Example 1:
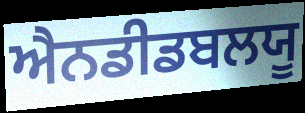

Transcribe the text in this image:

ਐਨਡੀਡਬਲਯੂ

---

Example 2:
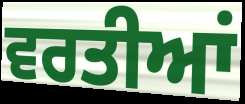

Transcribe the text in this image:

ਵਰਤੀਆਂ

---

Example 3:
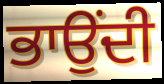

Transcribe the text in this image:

ਭਾਉਂਦੀ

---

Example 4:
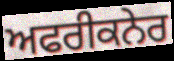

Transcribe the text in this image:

ਅਫਰੀਕਨੇਰ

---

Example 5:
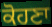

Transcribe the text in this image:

ਕੋਹਣਾ